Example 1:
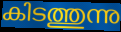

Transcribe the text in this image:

കിടത്തുന്നു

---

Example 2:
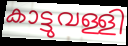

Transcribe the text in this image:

കാട്ടുവള്ളി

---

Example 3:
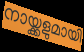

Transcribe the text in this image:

നായ്ക്കളുമായി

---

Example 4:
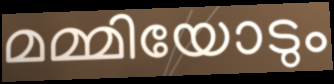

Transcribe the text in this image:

മമ്മിയോടും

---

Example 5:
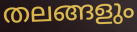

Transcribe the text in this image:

തലങ്ങളും